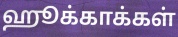
ஹூக்காக்கள்